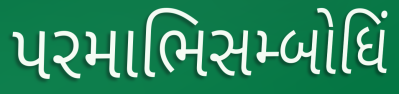
પરમાભિસમ્બોધિં